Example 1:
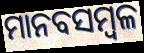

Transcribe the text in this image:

ମାନବସମ୍ବଳ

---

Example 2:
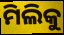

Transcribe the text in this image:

ମିଲିକୁ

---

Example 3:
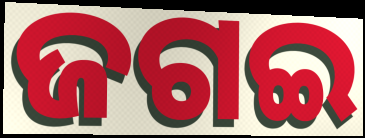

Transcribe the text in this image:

ଜଗଇ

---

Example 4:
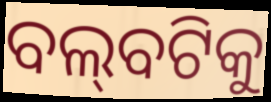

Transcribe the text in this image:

ବଲ୍‌ବଟିକୁ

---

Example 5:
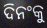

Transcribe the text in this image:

ଦିନଂକୁ